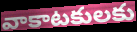
వాకాటకులకు